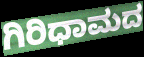
ಗಿರಿಧಾಮದ